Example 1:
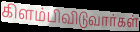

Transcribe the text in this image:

கிளம்பிவிடுவார்கள்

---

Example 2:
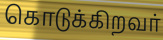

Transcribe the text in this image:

கொடுக்கிறவர்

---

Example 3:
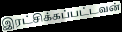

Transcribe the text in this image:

இரட்சிக்கப்பட்டவன்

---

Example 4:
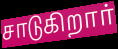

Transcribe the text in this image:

சாடுகிறார்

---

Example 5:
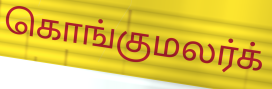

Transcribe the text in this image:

கொங்குமலர்க்